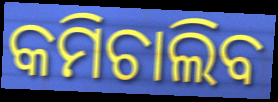
କମିଚାଲିବ